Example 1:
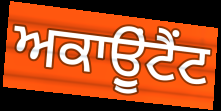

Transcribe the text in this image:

ਅਕਾਉੂਂਟੈਂਟ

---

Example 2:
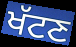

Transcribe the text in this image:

ਖੱਟਣ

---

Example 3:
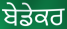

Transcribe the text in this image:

ਬੇਡੇਕਰ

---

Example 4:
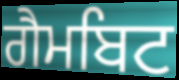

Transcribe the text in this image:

ਗੈਮਬਿਟ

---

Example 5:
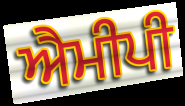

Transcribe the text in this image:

ਐਮੀਪੀ